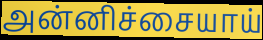
அன்னிச்சையாய்